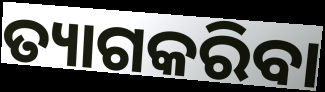
ତ୍ୟାଗକରିବା